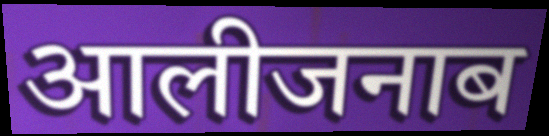
आलीजनाब